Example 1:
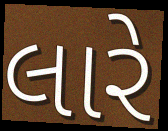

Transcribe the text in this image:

લારે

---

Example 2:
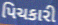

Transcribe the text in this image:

પિચકારી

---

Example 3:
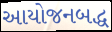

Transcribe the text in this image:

આયોજનબદ્ધ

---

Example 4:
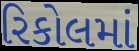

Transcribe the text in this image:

રિકોલમાં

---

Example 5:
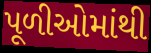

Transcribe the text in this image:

પૂળીઓમાંથી